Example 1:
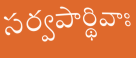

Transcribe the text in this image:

సర్వపార్థివాః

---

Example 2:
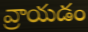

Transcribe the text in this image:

వ్రాయడం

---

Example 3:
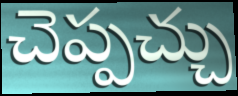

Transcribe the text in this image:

చెప్పచ్చు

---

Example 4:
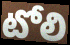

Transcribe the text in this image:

టోలి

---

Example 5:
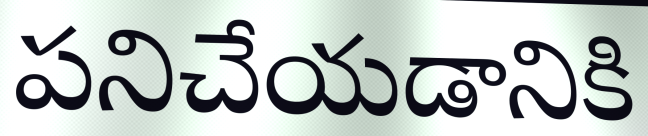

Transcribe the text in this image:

పనిచేయడానికి